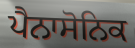
ਪੈਨਾਸੋਨਿਕ